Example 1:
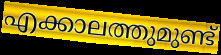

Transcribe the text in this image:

എക്കാലത്തുമുണ്ട്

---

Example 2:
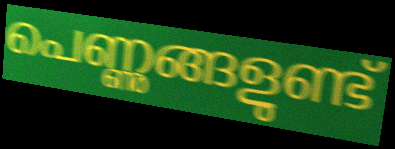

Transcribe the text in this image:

പെണ്ണുങ്ങളുണ്ട്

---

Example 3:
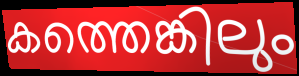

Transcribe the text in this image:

കത്തെങ്കിലും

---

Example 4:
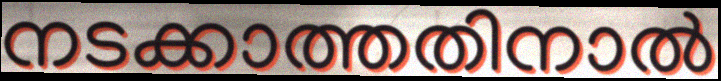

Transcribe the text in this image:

നടക്കാത്തതിനാൽ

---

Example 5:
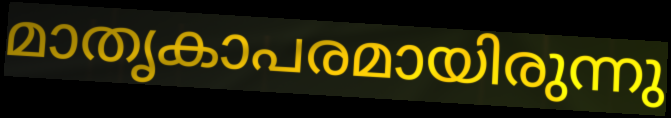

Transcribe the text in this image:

മാതൃകാപരമായിരുന്നു